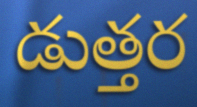
డుత్తర